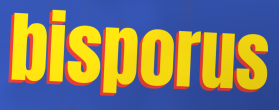
bisporus